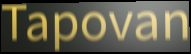
Tapovan